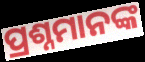
ପ୍ରଶ୍ନମାନଙ୍କ